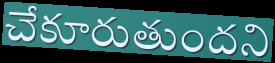
చేకూరుతుందని